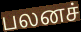
பலனச்